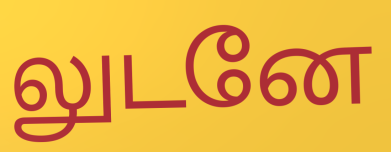
லுடனே